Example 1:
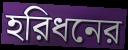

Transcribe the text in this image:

হরিধনের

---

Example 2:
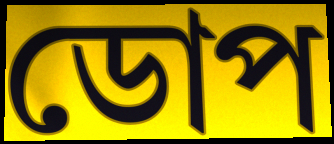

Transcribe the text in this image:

ডোপ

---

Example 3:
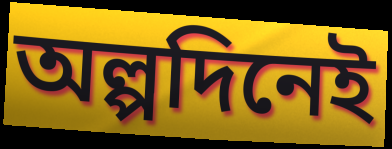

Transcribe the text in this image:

অল্পদিনেই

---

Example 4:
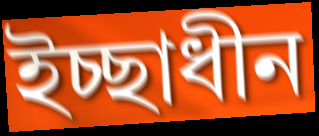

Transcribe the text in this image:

ইচ্ছাধীন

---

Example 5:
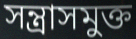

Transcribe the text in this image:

সন্ত্রাসমুক্ত